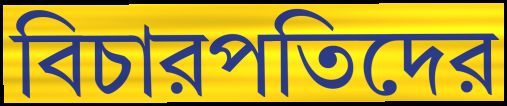
বিচারপতিদের